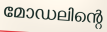
മോഡലിന്റെ